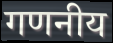
गणनीय